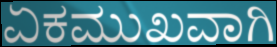
ಏಕಮುಖವಾಗಿ